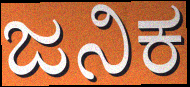
ಜನಿಕ